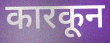
कारकून